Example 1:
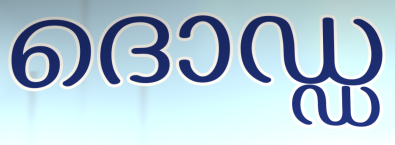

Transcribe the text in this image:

ദൊഡ്ഡ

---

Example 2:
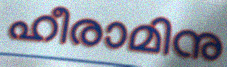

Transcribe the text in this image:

ഹീരാമിനു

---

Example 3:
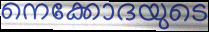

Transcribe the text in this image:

നെക്കോദയുടെ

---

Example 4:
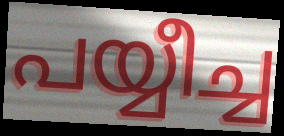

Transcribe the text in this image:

പയ്യീച്ച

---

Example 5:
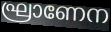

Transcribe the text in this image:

ഘ്രാണേന